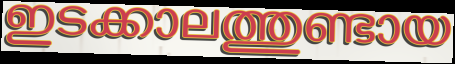
ഇടക്കാലത്തുണ്ടായ